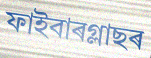
ফাইবাৰগ্লাছৰ